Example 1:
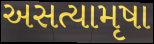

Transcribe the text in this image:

અસત્યામૃષા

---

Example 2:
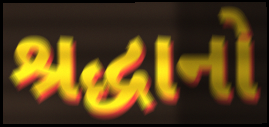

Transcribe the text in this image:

શ્રદ્ધાનો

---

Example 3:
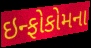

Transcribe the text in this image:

ઇન્ફોકોમના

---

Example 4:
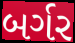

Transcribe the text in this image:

બર્ગર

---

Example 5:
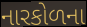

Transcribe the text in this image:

નારકોળના